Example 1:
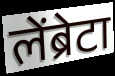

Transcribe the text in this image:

लेंब्रेटा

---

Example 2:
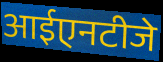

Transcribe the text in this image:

आईएनटीजे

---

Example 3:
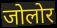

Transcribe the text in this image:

जोलोर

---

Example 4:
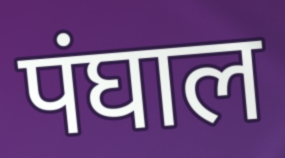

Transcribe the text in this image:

पंघाल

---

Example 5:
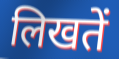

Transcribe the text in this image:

लिखतें